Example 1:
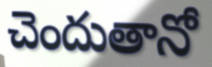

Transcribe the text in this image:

చెందుతానో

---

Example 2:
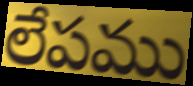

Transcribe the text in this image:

లేపము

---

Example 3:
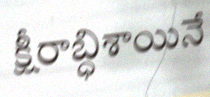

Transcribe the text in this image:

క్షీరాబ్ధిశాయినే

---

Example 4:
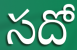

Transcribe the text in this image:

సదో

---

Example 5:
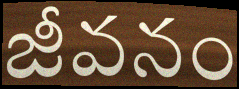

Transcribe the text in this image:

జీవనం